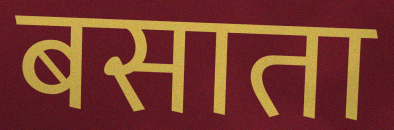
बसाता